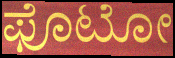
ಫೊಟೋ